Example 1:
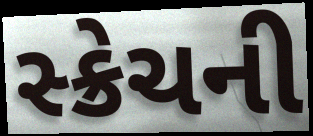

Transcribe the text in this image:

સ્ક્રેચની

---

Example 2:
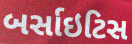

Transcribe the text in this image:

બર્સાઇટિસ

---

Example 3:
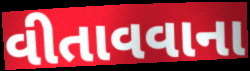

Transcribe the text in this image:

વીતાવવાના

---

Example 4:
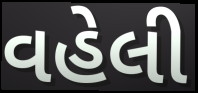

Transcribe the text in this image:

વહેલી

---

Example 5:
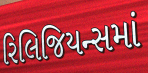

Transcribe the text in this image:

રિલિજિયન્સમાં